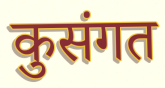
कुसंगत